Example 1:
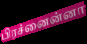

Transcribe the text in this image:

பிரச்னைன்னா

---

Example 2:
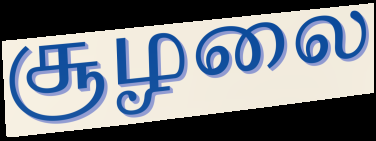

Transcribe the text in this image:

சூழலை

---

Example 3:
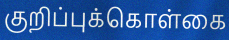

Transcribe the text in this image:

குறிப்புக்கொள்கை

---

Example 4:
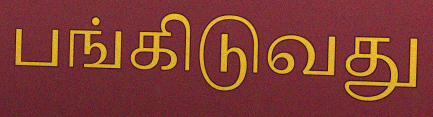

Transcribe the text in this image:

பங்கிடுவது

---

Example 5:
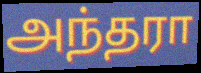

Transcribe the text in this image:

அந்தரா